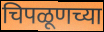
चिपळूणच्या